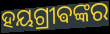
ହୟଗ୍ରୀଵଙ୍କର